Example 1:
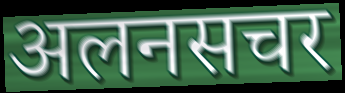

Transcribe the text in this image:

अलनसचर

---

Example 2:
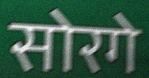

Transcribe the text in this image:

सोरगे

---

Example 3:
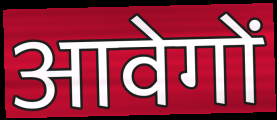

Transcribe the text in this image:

आवेगों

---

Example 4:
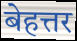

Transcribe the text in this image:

बेहत्तर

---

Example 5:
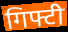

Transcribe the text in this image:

गिफ्टी